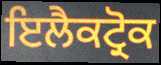
ਇਲੈਕਟ੍ਰੋਕ